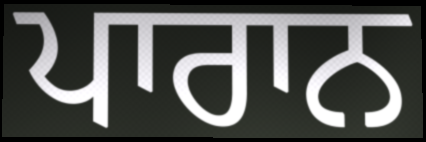
ਪਾਰਾਨ